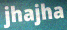
jhajha